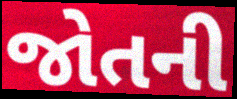
જોતની